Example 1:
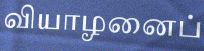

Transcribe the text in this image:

வியாழனைப்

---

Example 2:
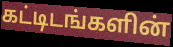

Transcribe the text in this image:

கட்டிடங்களின்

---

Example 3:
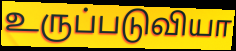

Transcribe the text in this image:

உருப்படுவியா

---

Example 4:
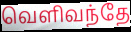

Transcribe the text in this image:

வெளிவந்தே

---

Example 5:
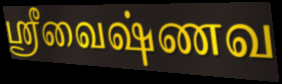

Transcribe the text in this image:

ஸ்ரீவைஷ்ணவ